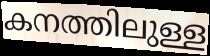
കനത്തിലുള്ള